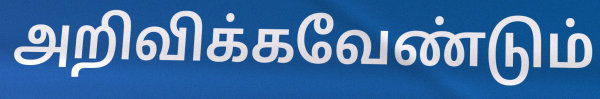
அறிவிக்கவேண்டும்